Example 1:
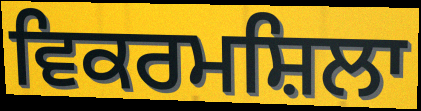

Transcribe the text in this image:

ਵਿਕਰਮਸ਼ਿਲਾ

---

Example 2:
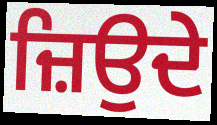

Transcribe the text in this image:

ਜ਼ਿਉਦੇ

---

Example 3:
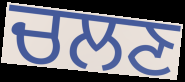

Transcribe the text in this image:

ਚਲਣ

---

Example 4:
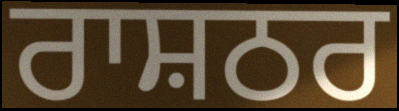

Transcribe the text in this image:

ਰਾਸ਼ਠਰ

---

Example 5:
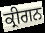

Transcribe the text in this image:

ਕ੍ਰੀਗਨ